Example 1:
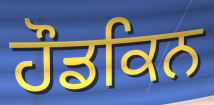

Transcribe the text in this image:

ਹੌਡਕਿਨ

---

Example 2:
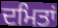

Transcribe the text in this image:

ਦਮਿਤਾਂ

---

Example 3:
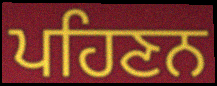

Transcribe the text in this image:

ਪਹਿਣਨ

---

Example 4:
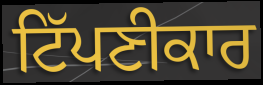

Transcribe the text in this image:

ਟਿੱਪਣੀਕਾਰ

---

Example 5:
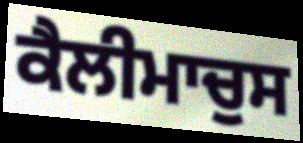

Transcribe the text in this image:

ਕੈਲੀਮਾਚੁਸ